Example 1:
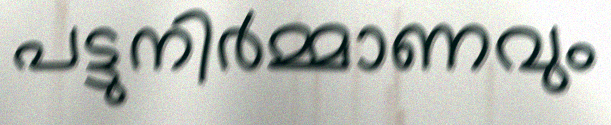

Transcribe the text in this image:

പട്ടുനിർമ്മാണവും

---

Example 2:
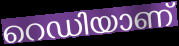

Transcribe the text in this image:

റെഡിയാണ്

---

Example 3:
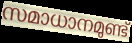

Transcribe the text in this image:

സമാധാനമുണ്ട്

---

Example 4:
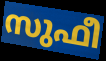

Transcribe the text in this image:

സുഫീ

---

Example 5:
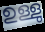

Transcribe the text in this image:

ഉള്ളു